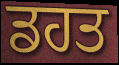
ਡਹਤ